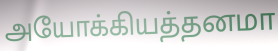
அயோக்கியத்தனமா